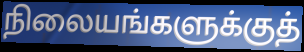
நிலையங்களுக்குத்